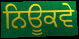
ਨਿਊਕਵੇ